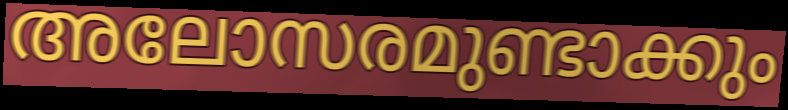
അലോസരമുണ്ടാക്കും